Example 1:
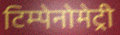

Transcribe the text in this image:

टिम्पेनोमेट्री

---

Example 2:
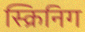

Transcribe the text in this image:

स्क्रिनिग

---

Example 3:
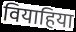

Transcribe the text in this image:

वियाहिया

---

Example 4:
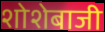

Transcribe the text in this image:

शोशेबाजी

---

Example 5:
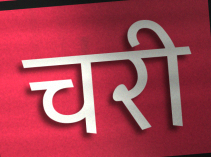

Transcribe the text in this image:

चरी